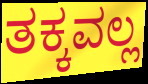
ತಕ್ಕವಲ್ಲ